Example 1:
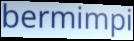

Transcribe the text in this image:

bermimpi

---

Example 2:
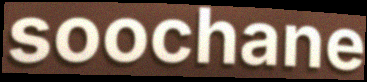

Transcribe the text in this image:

soochane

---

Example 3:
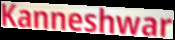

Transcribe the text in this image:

Kanneshwar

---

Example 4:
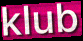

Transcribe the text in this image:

klub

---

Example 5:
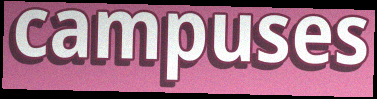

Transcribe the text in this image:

campuses